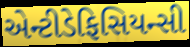
એન્ટીડેફિસિયન્સી